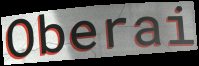
Oberai